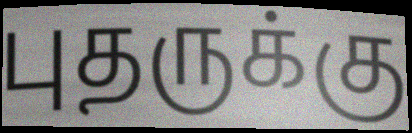
புதருக்கு